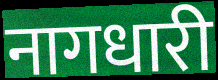
नागधारी